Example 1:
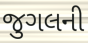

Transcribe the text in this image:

જુગલની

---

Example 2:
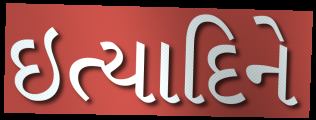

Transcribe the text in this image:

ઇત્‍યાદિને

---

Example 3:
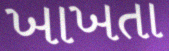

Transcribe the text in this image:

ખાખતા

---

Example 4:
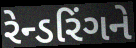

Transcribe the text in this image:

રેન્ડરિંગને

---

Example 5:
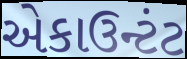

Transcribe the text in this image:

એકાઉન્ટંટ